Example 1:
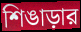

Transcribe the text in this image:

শিঙাড়ার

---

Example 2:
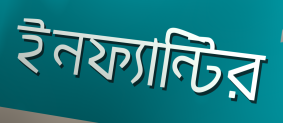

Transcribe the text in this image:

ইনফ্যান্টির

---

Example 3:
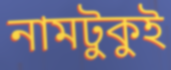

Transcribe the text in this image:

নামটুকুই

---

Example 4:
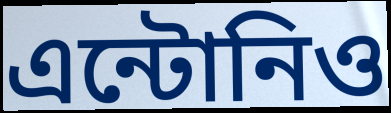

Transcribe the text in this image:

এন্টোনিও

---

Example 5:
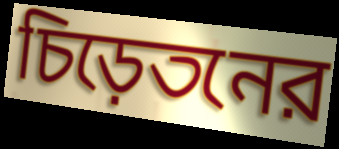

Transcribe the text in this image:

চিড়েতনের